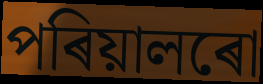
পৰিয়ালৰো